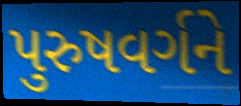
પુરુષવર્ગને